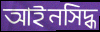
আইনসিদ্ধ